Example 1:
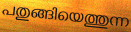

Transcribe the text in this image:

പതുങ്ങിയെത്തുന്ന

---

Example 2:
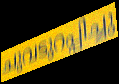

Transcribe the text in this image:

ചുവടുറപ്പിച്ചു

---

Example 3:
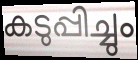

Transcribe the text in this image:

കടുപ്പിച്ചും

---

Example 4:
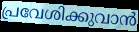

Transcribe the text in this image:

പ്രവേശിക്കുവാൻ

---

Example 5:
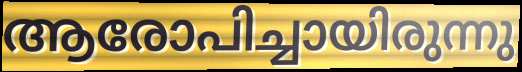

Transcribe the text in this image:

ആരോപിച്ചായിരുന്നു